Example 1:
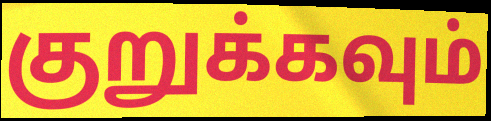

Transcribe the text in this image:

குறுக்கவும்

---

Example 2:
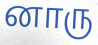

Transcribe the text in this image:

னாரு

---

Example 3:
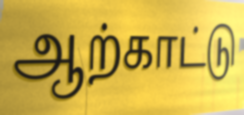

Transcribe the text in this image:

ஆற்காட்டு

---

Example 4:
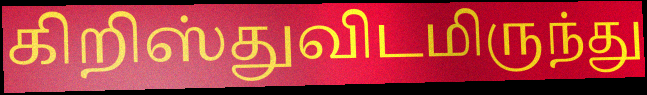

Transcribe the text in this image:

கிறிஸ்துவிடமிருந்து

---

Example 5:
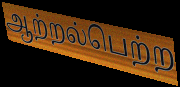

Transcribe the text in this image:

ஆற்றல்பெற்ற